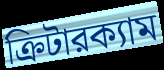
ক্রিটারক্যাম